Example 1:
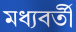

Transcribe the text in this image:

মধ্যবৰ্তী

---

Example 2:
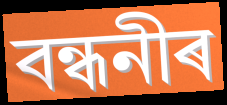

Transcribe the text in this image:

বন্ধনীৰ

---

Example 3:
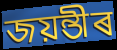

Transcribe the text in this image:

জয়ন্তীৰ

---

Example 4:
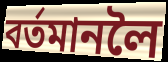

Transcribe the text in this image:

বৰ্তমানলৈ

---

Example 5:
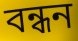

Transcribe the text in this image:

বন্ধন